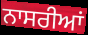
ਨਾਸਰੀਆਂ